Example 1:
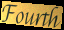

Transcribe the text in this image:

Fourth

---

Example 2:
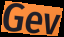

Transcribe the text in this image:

Gev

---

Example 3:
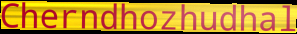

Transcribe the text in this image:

Cherndhozhudhal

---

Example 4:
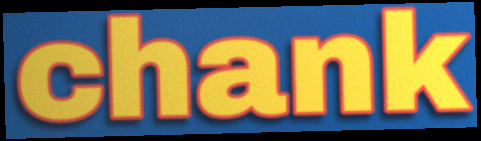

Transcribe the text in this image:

chank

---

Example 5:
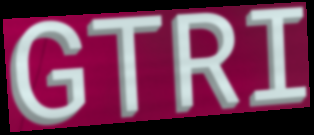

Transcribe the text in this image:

GTRI